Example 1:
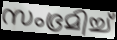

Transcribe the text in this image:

സംഭ്രമിച്ച്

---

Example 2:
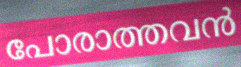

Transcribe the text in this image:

പോരാത്തവൻ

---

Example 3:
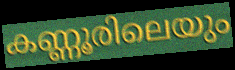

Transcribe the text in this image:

കണ്ണൂരിലെയും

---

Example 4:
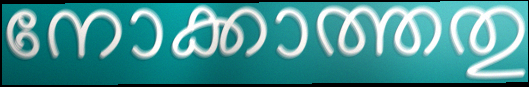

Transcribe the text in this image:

നോക്കാത്തതു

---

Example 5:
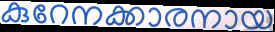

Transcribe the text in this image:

കുറേനക്കാരനായ